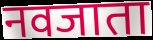
नवजाता